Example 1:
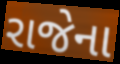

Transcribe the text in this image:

રાજેના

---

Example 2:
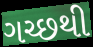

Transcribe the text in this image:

ગચ્છથી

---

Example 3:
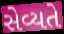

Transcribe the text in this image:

સેવ્યતે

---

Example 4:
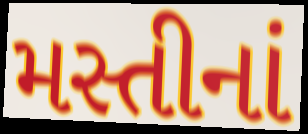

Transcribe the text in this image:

મસ્તીનાં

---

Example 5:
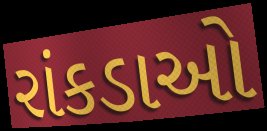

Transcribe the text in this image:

રાંકડાઓ